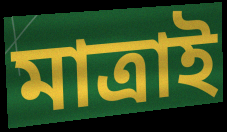
মাত্ৰাই